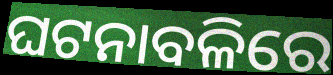
ଘଟନାବଳିରେ